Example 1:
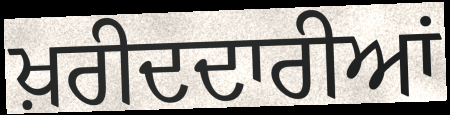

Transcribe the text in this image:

ਖ਼ਰੀਦਦਾਰੀਆਂ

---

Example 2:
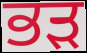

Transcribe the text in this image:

ਭੜ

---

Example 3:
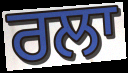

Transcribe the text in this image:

ਰਲਾ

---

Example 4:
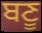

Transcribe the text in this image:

ਬਣੂ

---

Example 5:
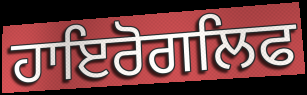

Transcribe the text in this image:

ਹਾਇਰੋਗਲਿਫ